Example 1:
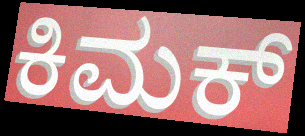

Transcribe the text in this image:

ಕಿಮಕ್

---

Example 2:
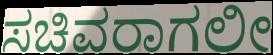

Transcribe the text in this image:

ಸಚಿವರಾಗಲೀ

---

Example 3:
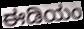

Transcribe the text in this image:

ಈಡಿಯಂ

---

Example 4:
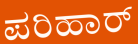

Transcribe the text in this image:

ಪರಿಹಾರ್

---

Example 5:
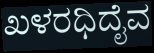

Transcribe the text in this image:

ಖಳರಧಿದೈವ